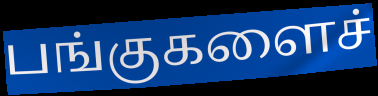
பங்குகளைச்